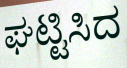
ಘಟ್ಟಿಸಿದ